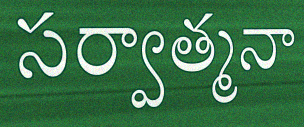
సర్వాత్మనా